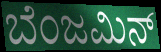
ಬೆಂಜಮಿನ್